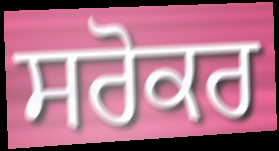
ਸਰੋਕਰ